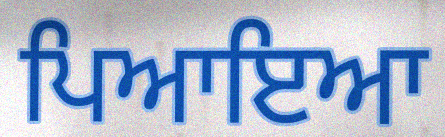
ਪਿਆਇਆ